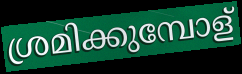
ശ്രമിക്കുമ്പോള്